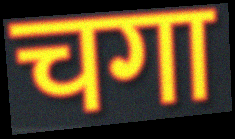
चगा